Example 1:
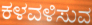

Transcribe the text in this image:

ಕಳವಳಿಸುವ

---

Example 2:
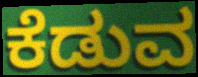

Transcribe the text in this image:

ಕೆಡುವ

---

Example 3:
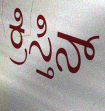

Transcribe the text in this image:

ಕ್ರಿಸ್ತಿನ್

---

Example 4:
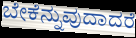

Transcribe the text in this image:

ಬೇಕೆನ್ನುವುದಾದರೆ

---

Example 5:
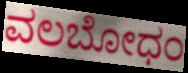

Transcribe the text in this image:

ವಲಬೋಧಂ